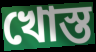
খোস্ত